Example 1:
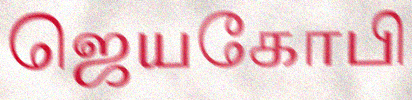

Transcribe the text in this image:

ஜெயகோபி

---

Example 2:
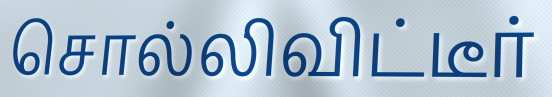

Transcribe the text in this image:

சொல்லிவிட்டீர்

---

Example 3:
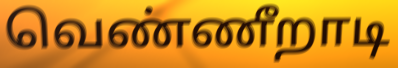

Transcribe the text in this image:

வெண்ணீறாடி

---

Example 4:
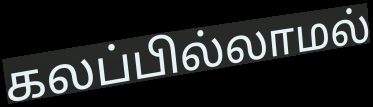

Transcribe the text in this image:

கலப்பில்லாமல்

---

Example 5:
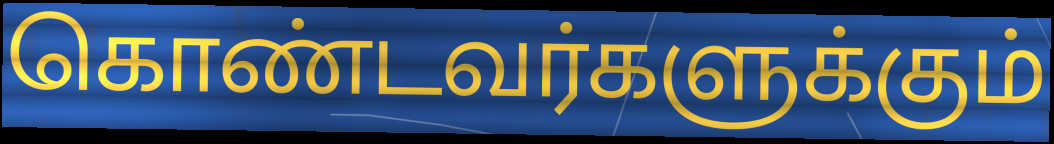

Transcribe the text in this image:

கொண்டவர்களுக்கும்